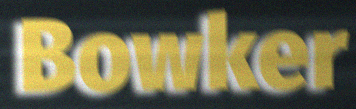
Bowker